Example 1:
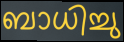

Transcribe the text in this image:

ബാധിച്ചു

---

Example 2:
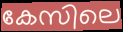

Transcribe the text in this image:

കേസിലെ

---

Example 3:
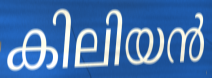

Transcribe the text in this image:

കിലിയൻ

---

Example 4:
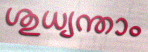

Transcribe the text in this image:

ശുധ്യന്താം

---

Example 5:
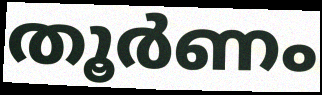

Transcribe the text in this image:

തൂർണം